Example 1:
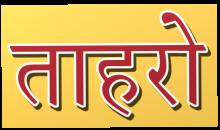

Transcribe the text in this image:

ताहरो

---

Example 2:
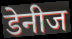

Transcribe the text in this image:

डेनीज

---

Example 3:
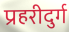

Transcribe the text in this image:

प्रहरीदुर्ग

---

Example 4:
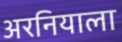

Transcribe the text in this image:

अरनियाला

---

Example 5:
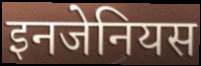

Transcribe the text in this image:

इनजेनियस